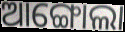
ଆଙ୍ଗୋଲା